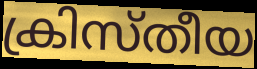
ക്രിസ്തീയ